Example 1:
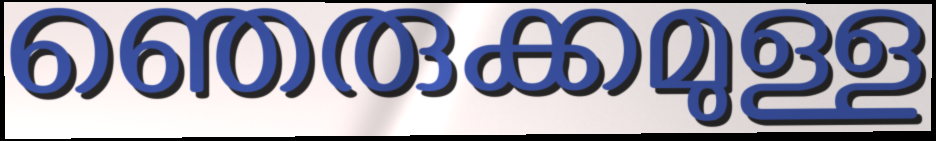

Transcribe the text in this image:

ഞെരുക്കമുള്ള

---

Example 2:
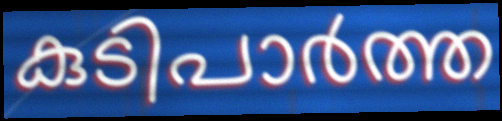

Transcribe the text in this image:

കുടിപാർത്ത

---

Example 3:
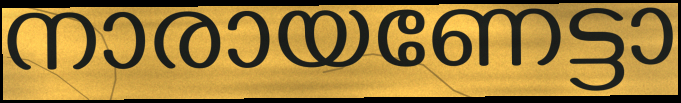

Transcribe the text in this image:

നാരായണേട്ടാ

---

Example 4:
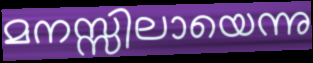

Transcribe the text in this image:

മനസ്സിലായെന്നു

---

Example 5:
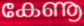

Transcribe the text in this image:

കേണൂ